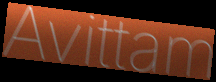
Avittam